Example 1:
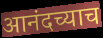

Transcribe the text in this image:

आनंदच्याच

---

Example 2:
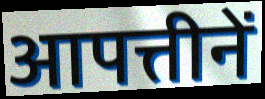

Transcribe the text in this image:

आपत्तीनें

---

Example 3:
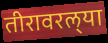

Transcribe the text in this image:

तीरावरल्या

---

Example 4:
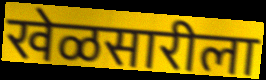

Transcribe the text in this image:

खेळसारीला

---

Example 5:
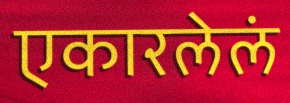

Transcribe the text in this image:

एकारलेलं